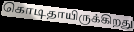
கொடிதாயிருக்கிறது